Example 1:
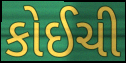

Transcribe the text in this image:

કોઈચી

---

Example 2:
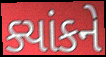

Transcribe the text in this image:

ક્યાંકને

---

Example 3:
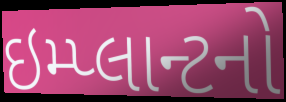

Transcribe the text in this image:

ઇમ્પ્લાન્ટનો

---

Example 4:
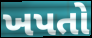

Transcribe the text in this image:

ખપતો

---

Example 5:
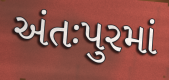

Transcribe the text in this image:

અંતઃપુરમાં